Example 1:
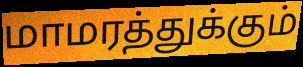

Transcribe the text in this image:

மாமரத்துக்கும்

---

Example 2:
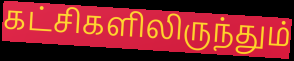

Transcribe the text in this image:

கட்சிகளிலிருந்தும்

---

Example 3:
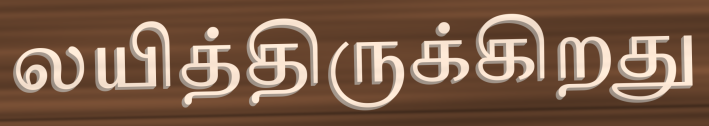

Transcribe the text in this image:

லயித்திருக்கிறது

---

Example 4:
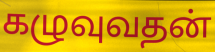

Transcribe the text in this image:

கழுவுவதன்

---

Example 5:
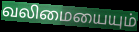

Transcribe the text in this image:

வலிமையையும்